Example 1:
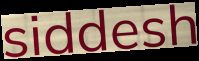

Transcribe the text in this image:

siddesh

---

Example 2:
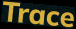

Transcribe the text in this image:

Trace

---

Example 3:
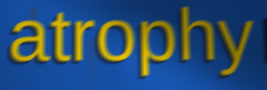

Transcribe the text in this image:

atrophy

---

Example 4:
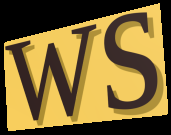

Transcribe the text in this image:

ws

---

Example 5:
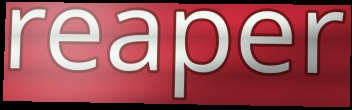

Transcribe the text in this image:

reaper